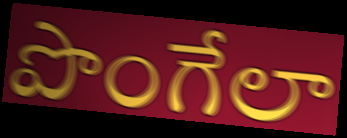
పొంగేలా